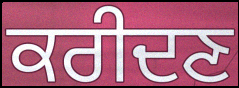
ਕਰੀਦਣ